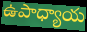
ఉపాధ్యాయ